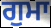
ਗੁਮਾ